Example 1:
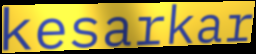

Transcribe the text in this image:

kesarkar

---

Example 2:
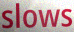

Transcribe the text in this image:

slows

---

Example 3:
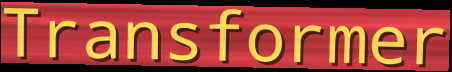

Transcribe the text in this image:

Transformer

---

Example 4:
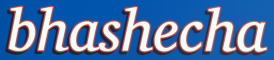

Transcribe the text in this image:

bhashecha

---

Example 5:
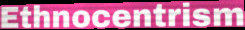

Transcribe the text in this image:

Ethnocentrism